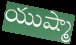
యుష్మా